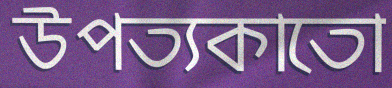
উপত্যকাতো